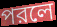
পরলে